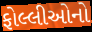
ફોલ્લીઓનો